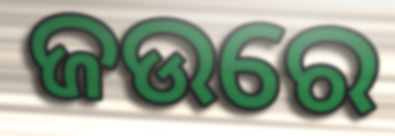
ଜଉରେ